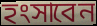
হংসাবেন